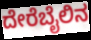
ದೇರೆಬೈಲಿನ